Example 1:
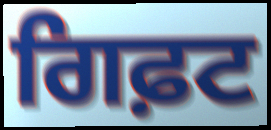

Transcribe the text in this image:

ਗਿਫ਼ਟ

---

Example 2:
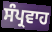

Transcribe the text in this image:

ਸੰਪ੍ਰਵਾਹ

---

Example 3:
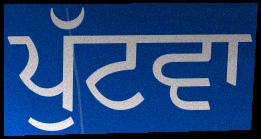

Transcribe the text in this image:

ਪੁੱਟਵਾ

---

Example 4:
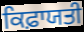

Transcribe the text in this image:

ਕਿਫ਼ਾਯਤੀ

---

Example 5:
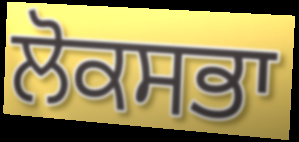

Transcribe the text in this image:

ਲੋਕਸਭਾ